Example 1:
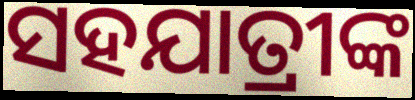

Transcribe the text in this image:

ସହଯାତ୍ରୀଙ୍କ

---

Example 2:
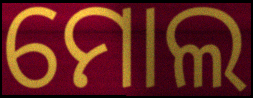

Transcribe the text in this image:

ମୋଲ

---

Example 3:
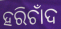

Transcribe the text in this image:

ହରିଚାଁଦ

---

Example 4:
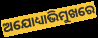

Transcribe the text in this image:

ଅଯୋଧ୍ୟାଭିମୁଖରେ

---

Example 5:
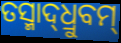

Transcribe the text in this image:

ତସ୍ମାଦ୍‌ଧ୍ରୁବମ୍